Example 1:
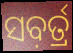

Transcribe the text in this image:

ସବ଼ର୍ତ୍ର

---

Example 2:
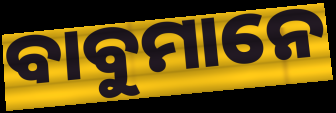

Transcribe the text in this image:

ବାବୁମାନେ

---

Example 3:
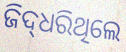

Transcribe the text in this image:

ଜିଦ୍‌ଧରିଥିଲେ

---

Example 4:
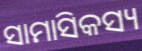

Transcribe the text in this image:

ସାମାସିକସ୍ୟ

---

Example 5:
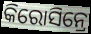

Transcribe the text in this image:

କିରୋସିନ୍ରେ